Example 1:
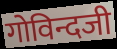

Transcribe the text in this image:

गोविन्दजी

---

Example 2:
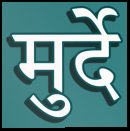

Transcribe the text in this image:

मुर्दे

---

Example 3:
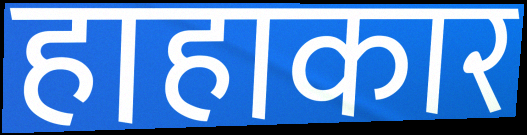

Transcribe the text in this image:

हाहाकार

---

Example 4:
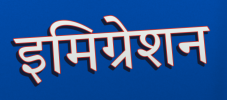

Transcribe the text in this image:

इमिग्रेशन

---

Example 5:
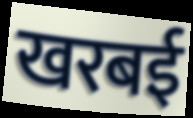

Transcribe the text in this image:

खरबई